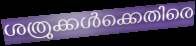
ശത്രുക്കൾക്കെതിരെ